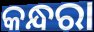
କନ୍ଧରା